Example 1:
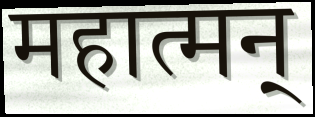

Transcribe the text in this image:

महात्मन्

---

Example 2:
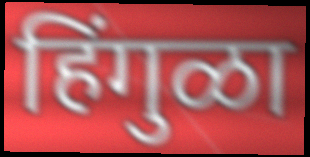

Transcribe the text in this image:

हिंगुळा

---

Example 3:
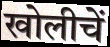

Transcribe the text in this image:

खोलीचें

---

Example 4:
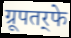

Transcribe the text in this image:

ग्रूपतर्फे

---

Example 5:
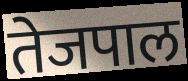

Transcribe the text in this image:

तेजपाल